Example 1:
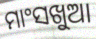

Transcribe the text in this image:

ମାଂସଖୁଆ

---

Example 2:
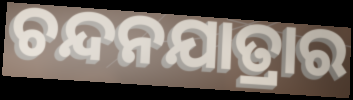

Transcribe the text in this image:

ଚନ୍ଦନଯାତ୍ରାର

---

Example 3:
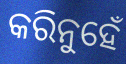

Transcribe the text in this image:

କରିନୁହେଁ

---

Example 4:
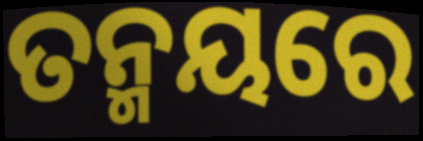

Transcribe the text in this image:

ତନ୍ମୟରେ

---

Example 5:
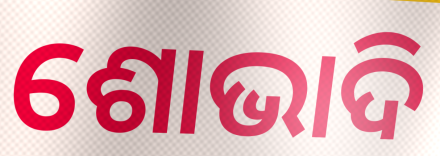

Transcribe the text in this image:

ଶୋଭାଦି